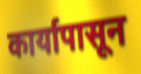
कार्यापासून